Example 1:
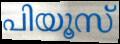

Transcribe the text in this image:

പിയൂസ്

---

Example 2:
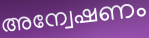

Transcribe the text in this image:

അന്വേഷണം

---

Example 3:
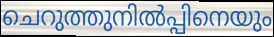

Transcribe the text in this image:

ചെറുത്തുനിൽപ്പിനെയും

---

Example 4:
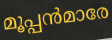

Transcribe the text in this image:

മൂപ്പൻമാരേ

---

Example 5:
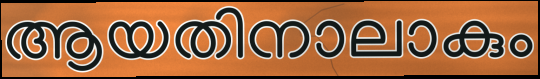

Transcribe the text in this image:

ആയതിനാലാകും